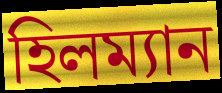
হিলম্যান